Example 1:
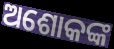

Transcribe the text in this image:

ଅଶୋକଙ୍କ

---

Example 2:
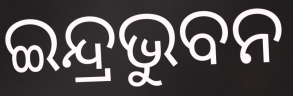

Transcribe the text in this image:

ଇନ୍ଦ୍ରଭୁବନ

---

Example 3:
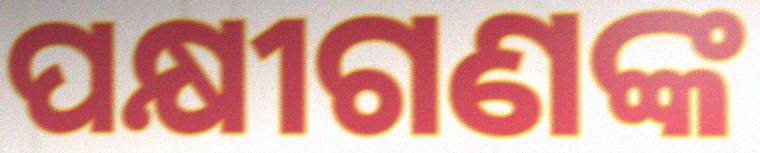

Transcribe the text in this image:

ପକ୍ଷୀଗଣଙ୍କ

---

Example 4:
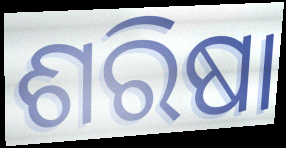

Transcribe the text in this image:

ଶରିଷା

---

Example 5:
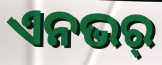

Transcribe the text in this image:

ଏନଭର୍